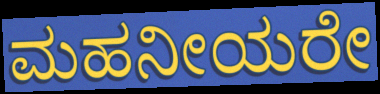
ಮಹನೀಯರೇ